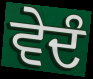
ਵੇਦੰ